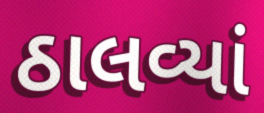
ઠાલવ્યાં